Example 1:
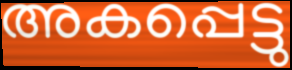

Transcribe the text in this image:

അകപ്പെട്ടു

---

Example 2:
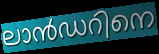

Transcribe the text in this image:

ലാൻഡറിനെ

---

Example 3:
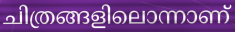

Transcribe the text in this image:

ചിത്രങ്ങളിലൊന്നാണ്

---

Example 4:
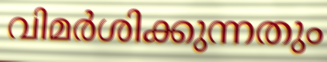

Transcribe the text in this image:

വിമർശിക്കുന്നതും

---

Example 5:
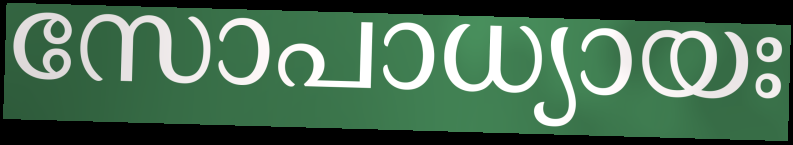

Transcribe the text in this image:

സോപാധ്യായഃ